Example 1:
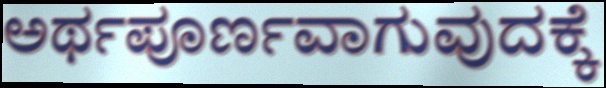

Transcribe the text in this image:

ಅರ್ಥಪೂರ್ಣವಾಗುವುದಕ್ಕೆ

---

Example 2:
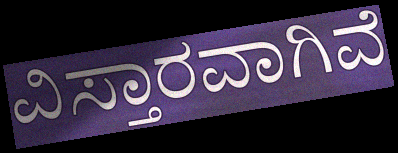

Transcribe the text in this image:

ವಿಸ್ತಾರವಾಗಿವೆ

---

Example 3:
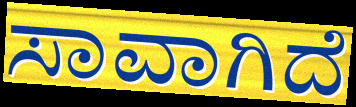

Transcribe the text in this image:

ಸಾವಾಗಿದೆ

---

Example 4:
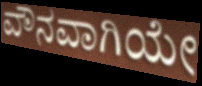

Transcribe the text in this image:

ವೌನವಾಗಿಯೇ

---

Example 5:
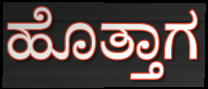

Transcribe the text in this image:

ಹೊತ್ತಾಗ